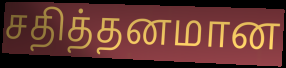
சதித்தனமான